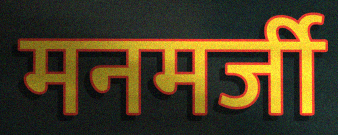
मनमर्जी